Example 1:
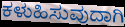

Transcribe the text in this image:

ಕಳುಹಿಸುವುದಾಗಿ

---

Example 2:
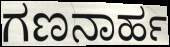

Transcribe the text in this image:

ಗಣನಾರ್ಹ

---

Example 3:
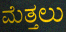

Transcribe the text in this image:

ಮೆತ್ತಲು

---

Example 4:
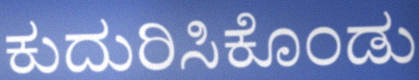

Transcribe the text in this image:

ಕುದುರಿಸಿಕೊಂಡು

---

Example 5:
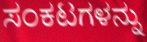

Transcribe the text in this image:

ಸಂಕಟಗಳನ್ನು